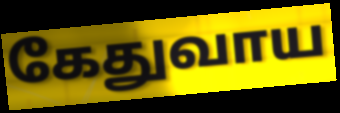
கேதுவாய